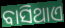
ବାସିଥାଏ